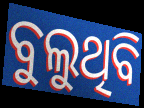
ବୁଲୁଥିବି